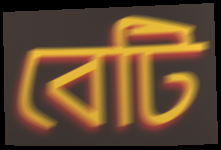
বেটি